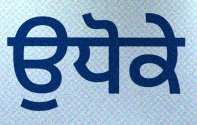
ਉਧੋਕੇ